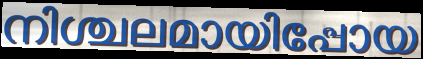
നിശ്ചലമായിപ്പോയ